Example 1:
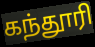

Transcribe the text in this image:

கந்தூரி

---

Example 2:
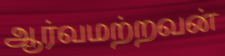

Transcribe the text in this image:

ஆர்வமற்றவன்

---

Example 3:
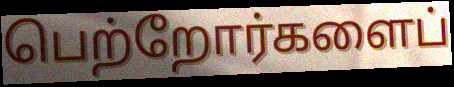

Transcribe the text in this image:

பெற்றோர்களைப்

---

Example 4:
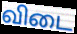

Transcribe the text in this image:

விடை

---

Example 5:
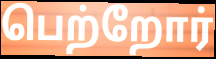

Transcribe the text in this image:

பெற்றோர்